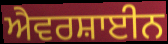
ਐਵਰਸ਼ਾਈਨ